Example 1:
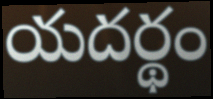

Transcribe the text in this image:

యదర్థం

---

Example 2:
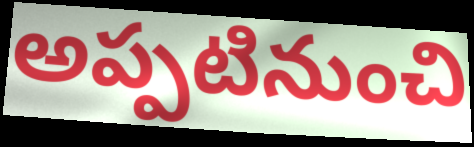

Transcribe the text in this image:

అప్పటినుంచి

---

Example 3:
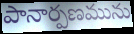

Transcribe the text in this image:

పానార్పణమును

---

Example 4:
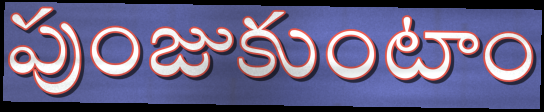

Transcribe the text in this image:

పుంజుకుంటాం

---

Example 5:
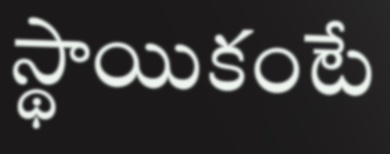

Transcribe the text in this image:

స్థాయికంటే